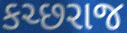
કચ્છરાજ